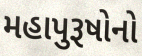
મહાપુરૂષોનો